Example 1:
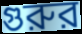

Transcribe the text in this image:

গুরুর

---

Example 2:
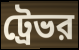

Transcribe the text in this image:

ট্রেভর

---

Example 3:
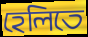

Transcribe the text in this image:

হেলিতে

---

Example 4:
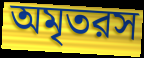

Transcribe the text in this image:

অমৃতরস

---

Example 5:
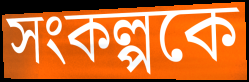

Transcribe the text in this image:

সংকল্পকে